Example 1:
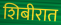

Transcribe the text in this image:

शिबीरात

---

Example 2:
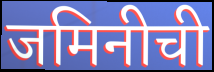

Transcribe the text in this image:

जमिनीची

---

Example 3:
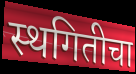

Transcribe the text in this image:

स्थगितीचा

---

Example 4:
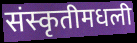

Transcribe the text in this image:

संस्कृतीमधली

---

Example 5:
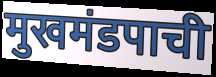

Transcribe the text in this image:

मुखमंडपाची